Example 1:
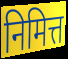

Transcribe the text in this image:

निमित्त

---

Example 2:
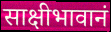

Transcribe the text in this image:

साक्षीभावानं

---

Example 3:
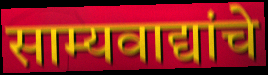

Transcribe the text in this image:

साम्यवाद्यांचे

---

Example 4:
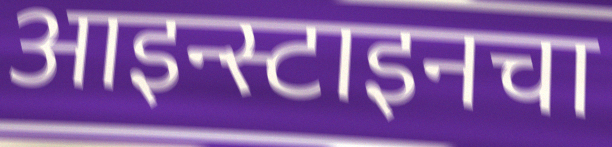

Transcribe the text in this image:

आइन्स्टाइनचा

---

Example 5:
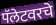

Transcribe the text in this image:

पॅलेटवरचे